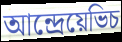
আন্দ্রেয়েভিচ